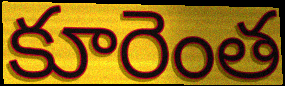
కూరెంత